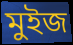
মুইজ